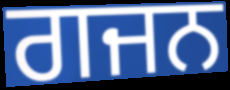
ਗਜਨ